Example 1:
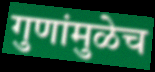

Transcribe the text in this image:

गुणांमुळेच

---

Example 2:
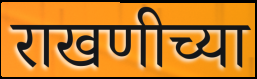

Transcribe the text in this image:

राखणीच्या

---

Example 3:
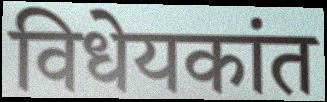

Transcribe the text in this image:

विधेयकांत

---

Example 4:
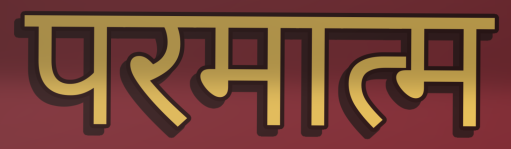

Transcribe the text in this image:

परमात्म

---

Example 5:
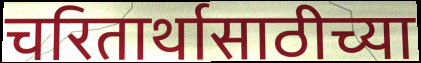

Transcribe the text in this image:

चरितार्थासाठीच्या